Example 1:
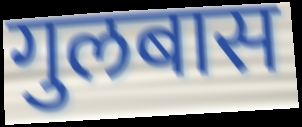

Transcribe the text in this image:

गुलबास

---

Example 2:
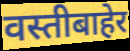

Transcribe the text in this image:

वस्तीबाहेर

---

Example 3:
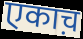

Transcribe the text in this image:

एकाच़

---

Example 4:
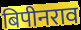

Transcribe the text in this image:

बिपीनराव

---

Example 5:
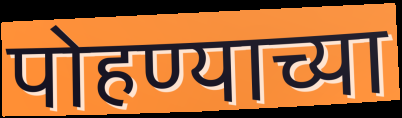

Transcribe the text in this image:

पोहण्याच्या